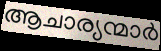
ആചാര്യന്മാർ